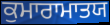
ਕੁਮਾਰਾਮਾਤਯ